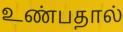
உண்பதால்